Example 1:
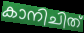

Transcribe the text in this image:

കാനിചിത്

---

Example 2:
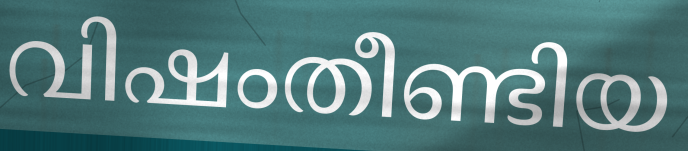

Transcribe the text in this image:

വിഷംതീണ്ടിയ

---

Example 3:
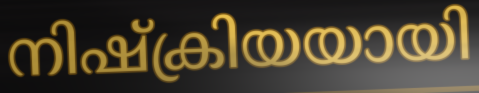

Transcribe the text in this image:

നിഷ്ക്രിയയായി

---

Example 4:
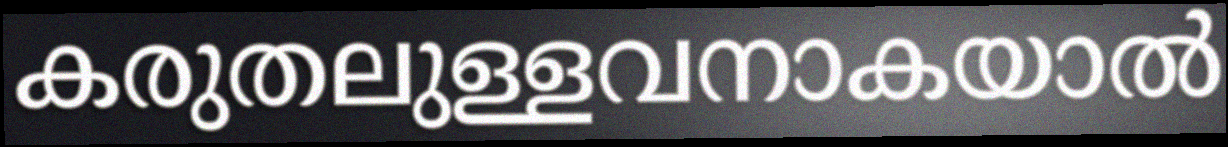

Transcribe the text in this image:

കരുതലുള്ളവനാകയാൽ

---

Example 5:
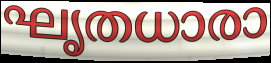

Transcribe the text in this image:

ഘൃതധാരാ